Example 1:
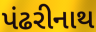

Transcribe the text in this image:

પંઢરીનાથ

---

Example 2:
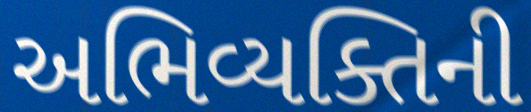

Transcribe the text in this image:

અભિવ્યક્તિની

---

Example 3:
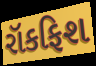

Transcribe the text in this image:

રૉકફિશ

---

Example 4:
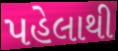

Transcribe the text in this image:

પહેલાથી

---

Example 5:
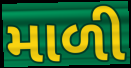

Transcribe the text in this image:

માળી